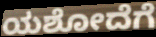
ಯಶೋದೆಗೆ